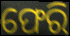
ଫେରି